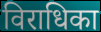
विराधिका